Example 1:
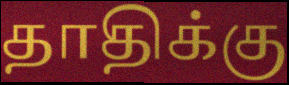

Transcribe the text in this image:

தாதிக்கு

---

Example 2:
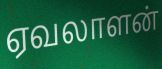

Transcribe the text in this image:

ஏவலாளன்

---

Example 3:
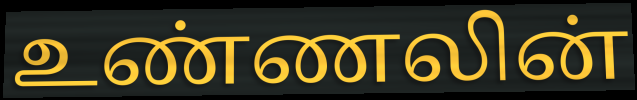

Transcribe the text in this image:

உண்ணலின்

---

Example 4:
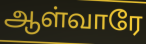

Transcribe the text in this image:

ஆள்வாரே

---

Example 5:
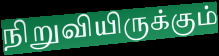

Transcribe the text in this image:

நிறுவியிருக்கும்